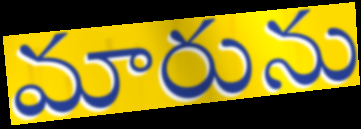
మారును